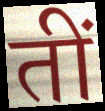
तीं